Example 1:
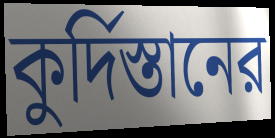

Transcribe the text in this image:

কুর্দিস্তানের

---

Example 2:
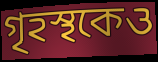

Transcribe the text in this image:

গৃহস্থকেও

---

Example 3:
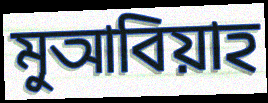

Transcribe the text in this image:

মুআবিয়াহ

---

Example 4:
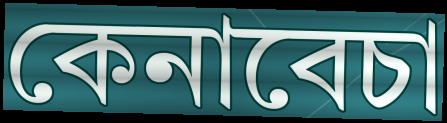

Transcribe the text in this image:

কেনাবেচা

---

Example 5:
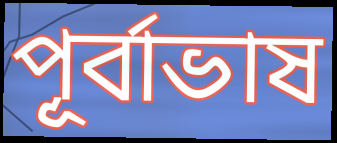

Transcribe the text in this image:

পূর্বাভাষ